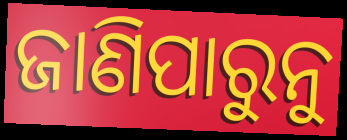
ଜାଣିପାରୁନୁ